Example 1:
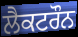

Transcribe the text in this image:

ਲੈਕਟਰੌਨ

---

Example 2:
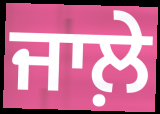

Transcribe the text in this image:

ਜਾਲ਼ੇ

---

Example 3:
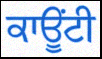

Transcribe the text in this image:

ਕਾਊਂਟੀ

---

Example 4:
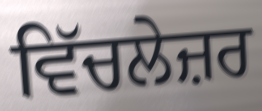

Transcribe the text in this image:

ਵਿੱਚਲੇਜ਼ਰ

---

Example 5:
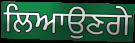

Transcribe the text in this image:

ਲਿਆਉਣਗੇ